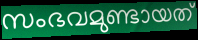
സംഭവമുണ്ടായത്